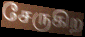
சேருகிற